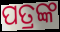
ପତ୍ରଙ୍କ